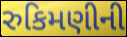
રુકિમણીની